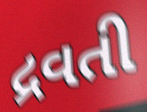
દ્રવતી